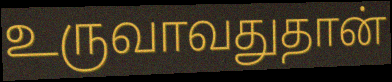
உருவாவதுதான்